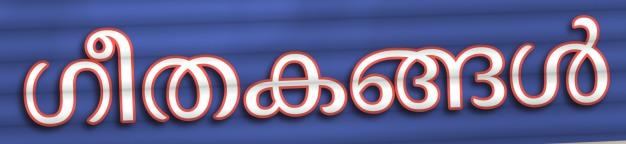
ഗീതകങ്ങൾ